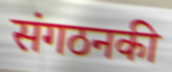
संगठनकी